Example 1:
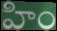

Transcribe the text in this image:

హిం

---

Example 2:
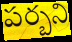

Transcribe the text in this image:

పర్బని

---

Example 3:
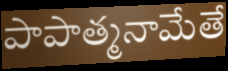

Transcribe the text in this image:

పాపాత్మనామేతే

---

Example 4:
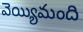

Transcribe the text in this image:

వెయ్యిమంది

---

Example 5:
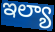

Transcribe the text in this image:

ఇల్యా